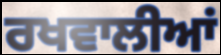
ਰਖਵਾਲੀਆਂ